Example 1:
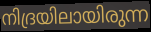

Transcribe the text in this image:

നിദ്രയിലായിരുന്ന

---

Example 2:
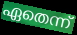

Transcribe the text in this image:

ഏതെന്ന്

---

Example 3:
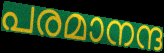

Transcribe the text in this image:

പരമാനന്ദ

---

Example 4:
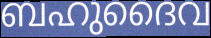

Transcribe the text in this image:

ബഹുദൈവ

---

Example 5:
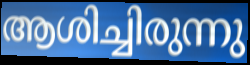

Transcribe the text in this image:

ആശിച്ചിരുന്നു